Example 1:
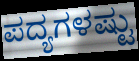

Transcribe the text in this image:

ಪದ್ಯಗಳಷ್ಟು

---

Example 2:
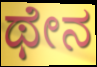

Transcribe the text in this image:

ಥೇನ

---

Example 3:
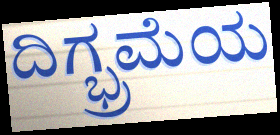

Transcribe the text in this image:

ದಿಗ್ಭ್ರಮೆಯ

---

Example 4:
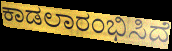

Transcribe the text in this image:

ಕಾಡಲಾರಂಭಿಸಿದೆ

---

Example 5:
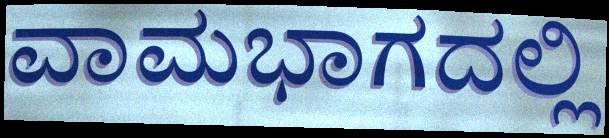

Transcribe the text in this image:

ವಾಮಭಾಗದಲ್ಲಿ